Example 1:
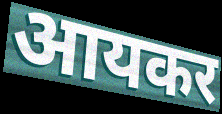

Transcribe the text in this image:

आयकर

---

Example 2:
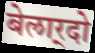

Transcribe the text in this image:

बेलार्दो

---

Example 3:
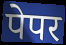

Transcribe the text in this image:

पेपर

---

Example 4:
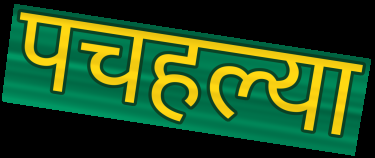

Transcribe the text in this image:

पचहल्या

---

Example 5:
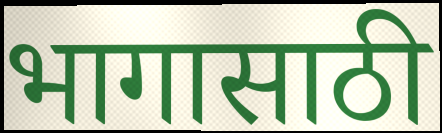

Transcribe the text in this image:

भागासाठी